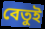
বেতুই